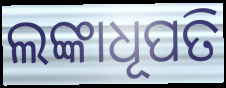
ଲଙ୍କାଧୂପତି